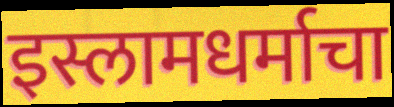
इस्लामधर्माचा